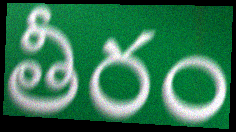
తీరం